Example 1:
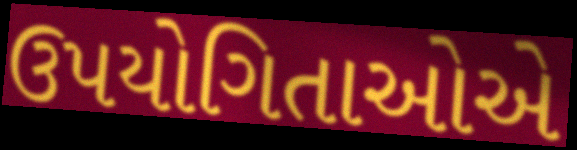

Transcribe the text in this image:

ઉપયોગિતાઓએ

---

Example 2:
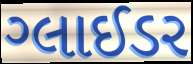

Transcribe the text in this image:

ગ્લાઈડર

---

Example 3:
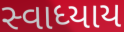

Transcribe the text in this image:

સ્વાધ્યાય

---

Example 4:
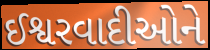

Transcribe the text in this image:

ઈશ્વરવાદીઓને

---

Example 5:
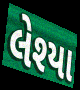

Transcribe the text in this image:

લેશ્યા